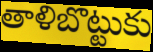
తాళిబొట్టుకు